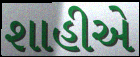
શાહીએ